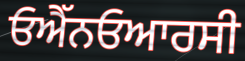
ਓਐੱਨਓਆਰਸੀ